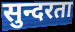
सुन्दरता